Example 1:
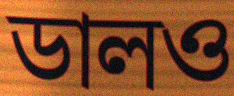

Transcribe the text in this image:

ডালও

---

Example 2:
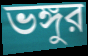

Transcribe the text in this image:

ভঙ্গুর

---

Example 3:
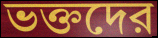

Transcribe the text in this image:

ভক্তদের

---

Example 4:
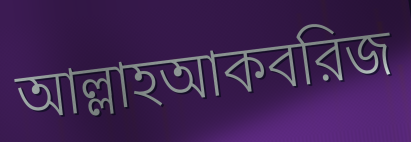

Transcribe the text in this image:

আল্লাহআকবরিজ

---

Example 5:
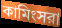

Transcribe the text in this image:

কামিংসরা